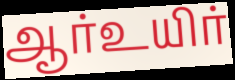
ஆர்உயிர்